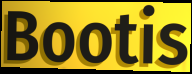
Bootis